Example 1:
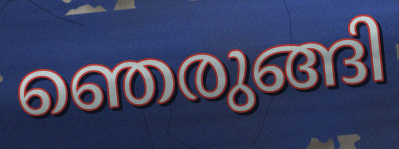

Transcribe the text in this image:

ഞെരുങ്ങി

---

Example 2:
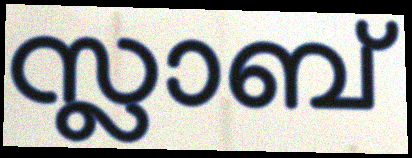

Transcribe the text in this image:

സ്ലാബ്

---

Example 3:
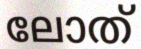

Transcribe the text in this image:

ലോത്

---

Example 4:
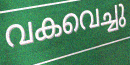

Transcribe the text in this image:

വകവെച്ചു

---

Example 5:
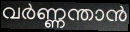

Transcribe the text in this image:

വർണ്ണന്താൻ